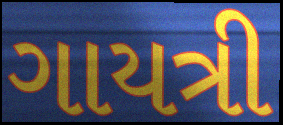
ગાયત્રી